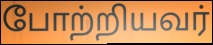
போற்றியவர்